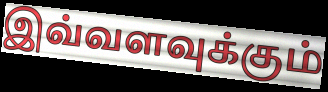
இவ்வளவுக்கும்